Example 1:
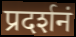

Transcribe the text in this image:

प्रदर्शनं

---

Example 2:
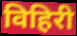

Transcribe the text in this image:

विहिरी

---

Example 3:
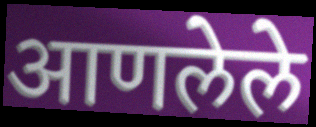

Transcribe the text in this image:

आणलेले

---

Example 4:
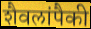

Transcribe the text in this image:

शैवलांपैकी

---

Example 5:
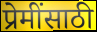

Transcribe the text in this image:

प्रेमींसाठी